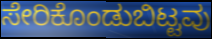
ಸೇರಿಕೊಂಡುಬಿಟ್ಟವು